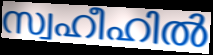
സ്വഹീഹിൽ